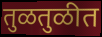
तुळतुळीत